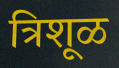
त्रिशूळ